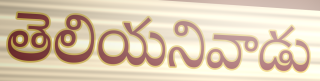
తెలియనివాడు